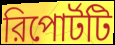
রিপোর্টটি